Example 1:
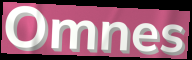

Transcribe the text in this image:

Omnes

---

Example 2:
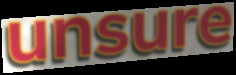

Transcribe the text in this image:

unsure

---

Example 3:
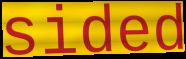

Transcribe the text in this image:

sided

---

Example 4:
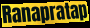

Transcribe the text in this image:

Ranapratap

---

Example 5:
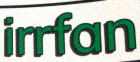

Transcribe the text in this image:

irrfan